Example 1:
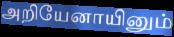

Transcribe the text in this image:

அறியேனாயினும்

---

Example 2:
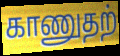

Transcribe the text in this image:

காணுதற்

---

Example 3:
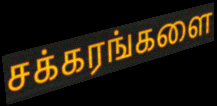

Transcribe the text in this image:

சக்கரங்களை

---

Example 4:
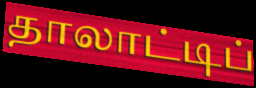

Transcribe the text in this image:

தாலாட்டிப்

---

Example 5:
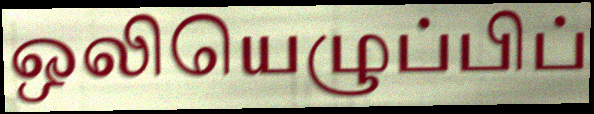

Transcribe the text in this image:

ஒலியெழுப்பிப்